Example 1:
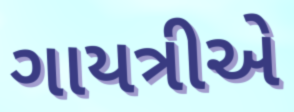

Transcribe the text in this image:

ગાયત્રીએ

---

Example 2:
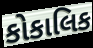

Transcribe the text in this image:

કોકાલિક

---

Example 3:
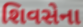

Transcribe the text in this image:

શિવસેના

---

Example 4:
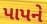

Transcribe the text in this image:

પાપને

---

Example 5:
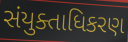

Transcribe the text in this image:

સંયુક્તાધિકરણ